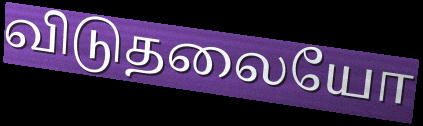
விடுதலையோ